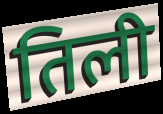
तिली